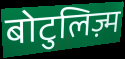
बोटुलिज़्म